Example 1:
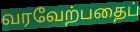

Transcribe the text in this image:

வரவேற்பதைப்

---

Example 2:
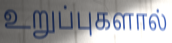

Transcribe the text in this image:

உறுப்புகளால்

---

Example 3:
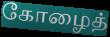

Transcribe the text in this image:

கோழைத்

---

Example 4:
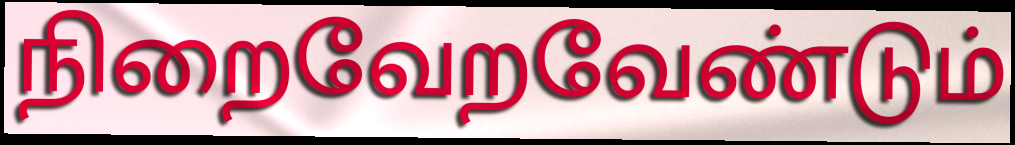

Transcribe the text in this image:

நிறைவேறவேண்டும்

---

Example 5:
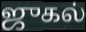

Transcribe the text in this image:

ஜுகல்